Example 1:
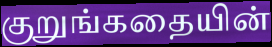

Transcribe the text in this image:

குறுங்கதையின்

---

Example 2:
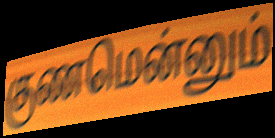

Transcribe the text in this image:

குணமென்னும்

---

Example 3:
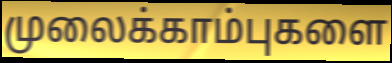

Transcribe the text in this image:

முலைக்காம்புகளை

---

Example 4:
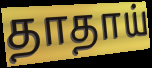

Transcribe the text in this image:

தாதாய்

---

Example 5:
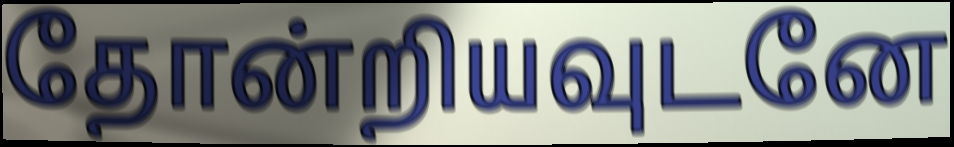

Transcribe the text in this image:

தோன்றியவுடனே